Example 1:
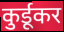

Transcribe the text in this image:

कुर्डूकर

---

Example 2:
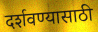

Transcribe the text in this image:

दर्शवण्यासाठी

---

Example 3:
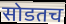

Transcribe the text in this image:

सोडतच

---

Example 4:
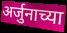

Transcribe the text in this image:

अर्जुनाच्या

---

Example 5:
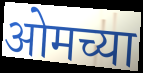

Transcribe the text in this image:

ओमच्या